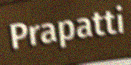
Prapatti